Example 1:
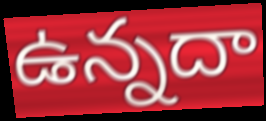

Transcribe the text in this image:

ఉన్నదా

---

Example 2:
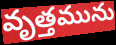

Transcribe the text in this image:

వృత్తమును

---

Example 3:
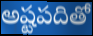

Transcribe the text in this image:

అష్టపదితో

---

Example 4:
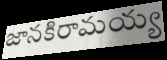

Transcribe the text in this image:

జానకిరామయ్య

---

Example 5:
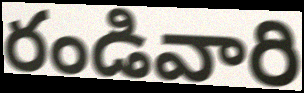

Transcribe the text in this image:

రండివారి